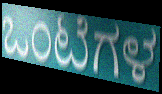
ಒಂಟೆಗಳ